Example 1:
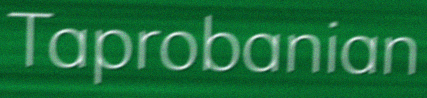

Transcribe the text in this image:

Taprobanian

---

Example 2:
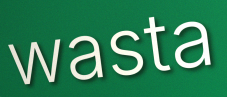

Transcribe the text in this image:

wasta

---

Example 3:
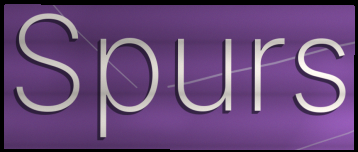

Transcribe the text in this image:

Spurs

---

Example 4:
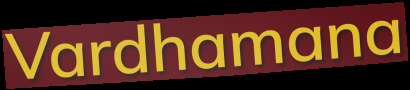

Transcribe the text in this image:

Vardhamana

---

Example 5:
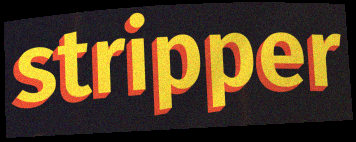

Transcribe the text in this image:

stripper